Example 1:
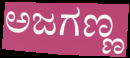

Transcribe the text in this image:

ಅಜಗಣ್ಣ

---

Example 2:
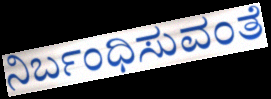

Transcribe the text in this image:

ನಿರ್ಬಂಧಿಸುವಂತೆ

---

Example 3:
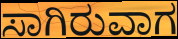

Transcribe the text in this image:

ಸಾಗಿರುವಾಗ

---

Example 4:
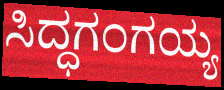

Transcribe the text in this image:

ಸಿದ್ಧಗಂಗಯ್ಯ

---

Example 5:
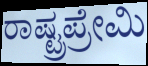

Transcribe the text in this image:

ರಾಷ್ಟ್ರಪ್ರೇಮಿ